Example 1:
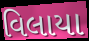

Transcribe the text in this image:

વિલાયા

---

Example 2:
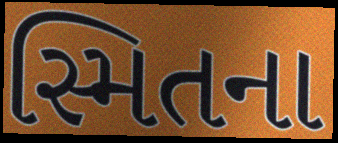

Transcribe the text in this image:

સ્મિતના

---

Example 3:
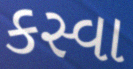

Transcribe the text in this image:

કસ્વા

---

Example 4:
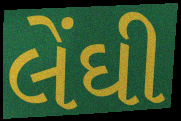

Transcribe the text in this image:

લેંઘી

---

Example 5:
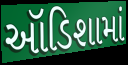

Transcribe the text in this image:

ઑડિશામાં